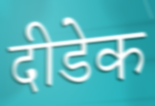
दीडेक